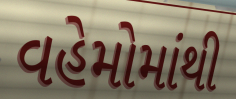
વહેમોમાંથી